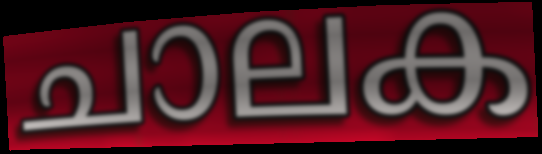
ചാലക